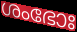
ശംഭോഃ